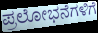
ಪ್ರಲೋಭನೆಗಳಿಗೆ